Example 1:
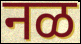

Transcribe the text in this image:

नळ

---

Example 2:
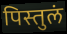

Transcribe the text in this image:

पिस्तुलं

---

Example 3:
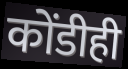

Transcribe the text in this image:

कोंडीही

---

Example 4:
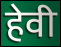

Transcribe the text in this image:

हेवी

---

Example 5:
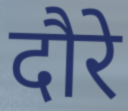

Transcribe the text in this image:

दौरे